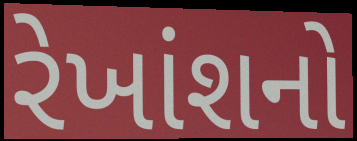
રેખાંશનો